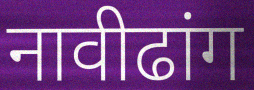
नावीढांग